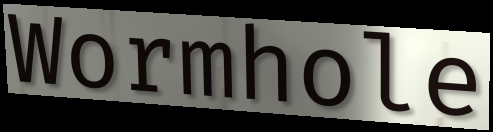
Wormhole